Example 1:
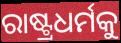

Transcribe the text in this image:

ରାଷ୍ଟ୍ରଧର୍ମକୁ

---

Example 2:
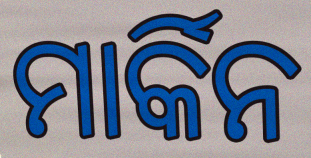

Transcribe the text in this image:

ମାର୍କିନ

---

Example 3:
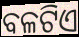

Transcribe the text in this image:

ବଳଟିଏ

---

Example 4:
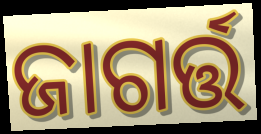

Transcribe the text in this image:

ଜାଗର୍ତ୍ତ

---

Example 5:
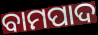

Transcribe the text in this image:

ବାମପାଦ